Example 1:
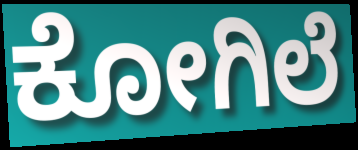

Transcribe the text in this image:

ಕೋಗಿಲೆ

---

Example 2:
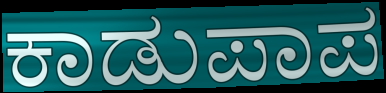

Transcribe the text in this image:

ಕಾಡುಪಾಪ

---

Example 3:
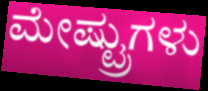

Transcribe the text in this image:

ಮೇಷ್ಟ್ರುಗಳು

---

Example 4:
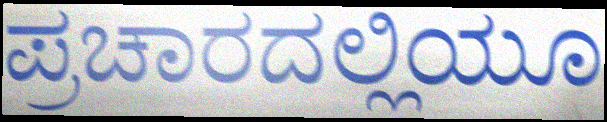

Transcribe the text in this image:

ಪ್ರಚಾರದಲ್ಲಿಯೂ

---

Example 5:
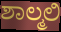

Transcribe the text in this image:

ಶಾಲ್ಮಲಿ